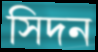
সিদন